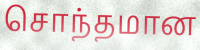
சொந்தமான